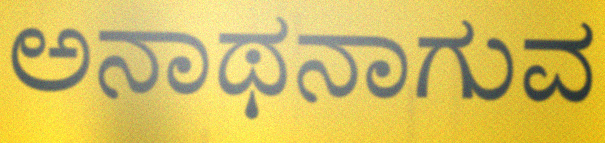
ಅನಾಥನಾಗುವ